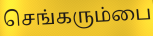
செங்கரும்பை